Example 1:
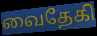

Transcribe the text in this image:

வைதேகி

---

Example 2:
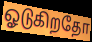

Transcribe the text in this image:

ஓடுகிறதோ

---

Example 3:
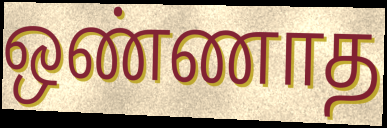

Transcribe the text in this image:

ஒண்ணாத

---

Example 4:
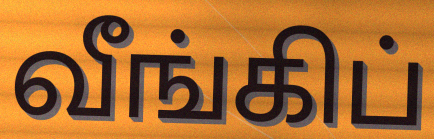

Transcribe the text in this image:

வீங்கிப்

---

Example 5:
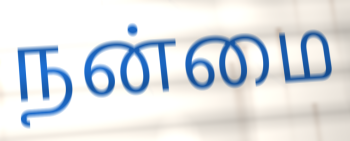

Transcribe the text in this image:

நன்மை